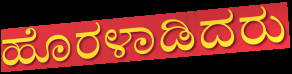
ಹೊರಳಾಡಿದರು